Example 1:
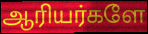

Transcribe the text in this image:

ஆரியர்களே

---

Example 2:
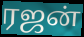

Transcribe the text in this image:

ரஜன்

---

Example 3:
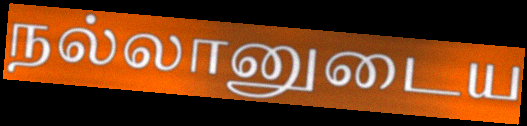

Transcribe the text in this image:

நல்லானுடைய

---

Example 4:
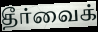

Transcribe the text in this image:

தீர்வைக்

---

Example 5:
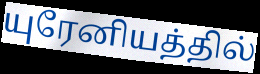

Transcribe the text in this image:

யுரேனியத்தில்